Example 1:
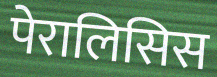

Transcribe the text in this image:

पेरालिसिस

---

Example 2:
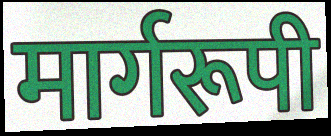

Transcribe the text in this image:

मार्गरूपी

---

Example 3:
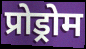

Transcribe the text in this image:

प्रोड्रोम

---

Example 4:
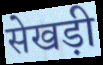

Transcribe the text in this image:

सेखड़ी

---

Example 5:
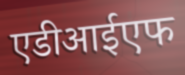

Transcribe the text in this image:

एडीआईएफ